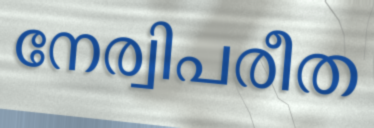
നേര്വിപരീത